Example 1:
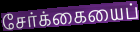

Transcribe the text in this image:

சேர்க்கையைப்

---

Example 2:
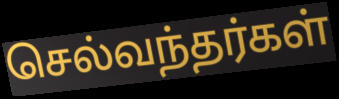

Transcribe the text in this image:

செல்வந்தர்கள்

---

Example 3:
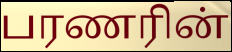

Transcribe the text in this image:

பரணரின்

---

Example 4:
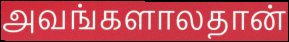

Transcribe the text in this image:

அவங்களாலதான்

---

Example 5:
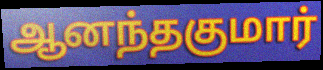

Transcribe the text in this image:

ஆனந்தகுமார்